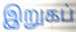
இறுகப்